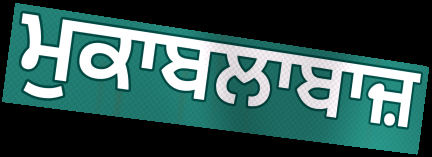
ਮੁਕਾਬਲਾਬਾਜ਼